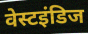
वेस्टइंडिज